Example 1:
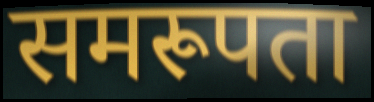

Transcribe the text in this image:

समरूपता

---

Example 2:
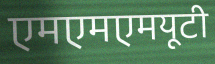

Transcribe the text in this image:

एमएमएमयूटी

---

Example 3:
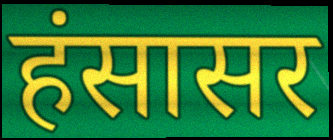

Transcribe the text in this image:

हंसासर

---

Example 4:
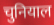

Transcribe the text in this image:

चुनियाल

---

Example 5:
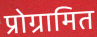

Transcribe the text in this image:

प्रोग्रामित